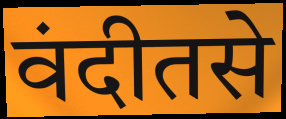
वंदीतसे